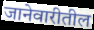
जानेवारीतील